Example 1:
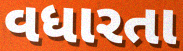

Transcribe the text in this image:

વધારતા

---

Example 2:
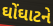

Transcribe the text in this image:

ઘોંઘાટને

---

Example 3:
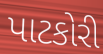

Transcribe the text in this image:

પાટકોરી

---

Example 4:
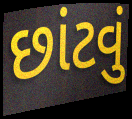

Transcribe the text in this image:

છાંટવું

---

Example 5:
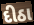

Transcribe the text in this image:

દીઠા